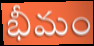
భీమం